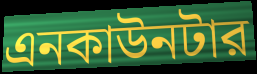
এনকাউনটার